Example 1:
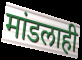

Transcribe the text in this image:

मांडलाही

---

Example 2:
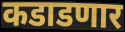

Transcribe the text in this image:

कडाडणार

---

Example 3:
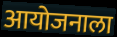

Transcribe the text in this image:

आयोजनाला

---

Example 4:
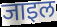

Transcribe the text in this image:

जाइल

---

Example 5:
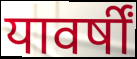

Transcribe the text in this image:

यावर्षीं